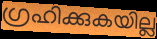
ഗ്രഹിക്കുകയില്ല